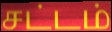
சட்டம்